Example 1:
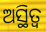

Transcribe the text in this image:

ଅସ୍ଥିତ୍ୱ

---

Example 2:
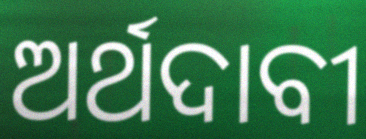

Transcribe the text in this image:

ଅର୍ଥଦାବୀ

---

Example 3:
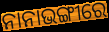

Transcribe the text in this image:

ନାନାଭଙ୍ଗୀରେ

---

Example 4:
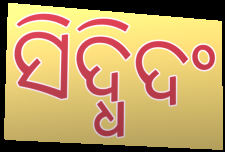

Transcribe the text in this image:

ସିଦ୍ଧିଦଂ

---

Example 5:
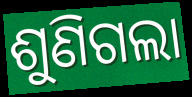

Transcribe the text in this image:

ଶୁଣିଗଲା